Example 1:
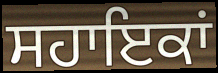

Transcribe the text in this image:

ਸਹਾਇਕਾਂ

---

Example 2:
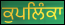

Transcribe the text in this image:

ਕੁਪਲਿੰਕਾ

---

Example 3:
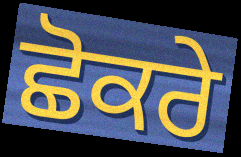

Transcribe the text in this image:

ਛੋਕਰੇ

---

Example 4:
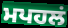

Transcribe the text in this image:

ਮਪਹਲਂ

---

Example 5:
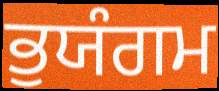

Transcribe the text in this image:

ਭੁਯੰਗਮ